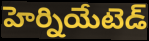
హెర్నియేటెడ్